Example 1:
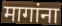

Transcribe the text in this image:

मागांना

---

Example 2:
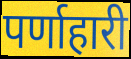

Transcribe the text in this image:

पर्णाहारी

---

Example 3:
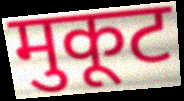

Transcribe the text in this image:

मुकूट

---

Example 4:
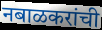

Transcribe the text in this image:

नबाळकरांची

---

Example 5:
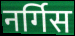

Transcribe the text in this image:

नर्गिस